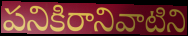
పనికిరానివాటిని